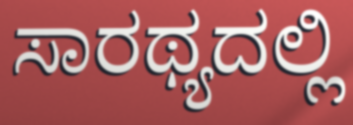
ಸಾರಥ್ಯದಲ್ಲಿ